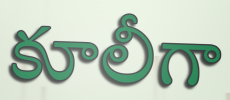
కూలీగా